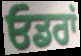
ਓਡਰਾਂ